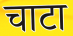
चाटा